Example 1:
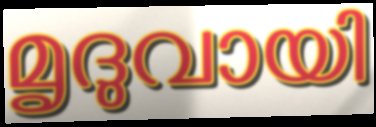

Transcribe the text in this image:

മൃദുവായി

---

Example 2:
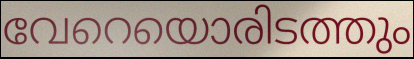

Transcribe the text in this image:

വേറെയൊരിടത്തും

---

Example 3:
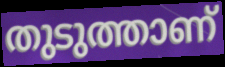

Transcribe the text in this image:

തുടുത്താണ്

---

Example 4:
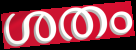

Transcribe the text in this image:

ശതം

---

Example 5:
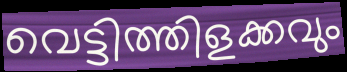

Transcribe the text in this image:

വെട്ടിത്തിളക്കവും